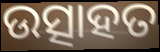
ଉତ୍ସାହତ